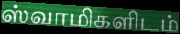
ஸ்வாமிகளிடம்